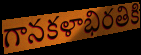
గానకళాభిరతికి